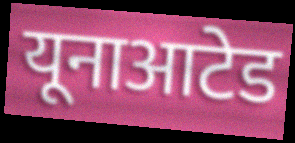
यूनाआटेड